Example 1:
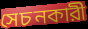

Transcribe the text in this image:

সেচনকারী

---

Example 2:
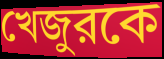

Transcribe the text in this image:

খেজুরকে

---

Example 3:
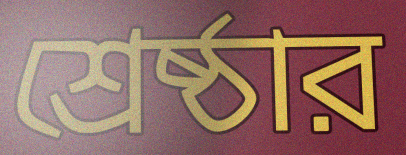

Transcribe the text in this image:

শ্রেষ্ঠার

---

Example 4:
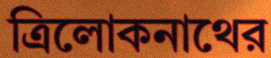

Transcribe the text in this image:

ত্রিলোকনাথের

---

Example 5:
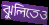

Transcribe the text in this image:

ঝুলিতেও